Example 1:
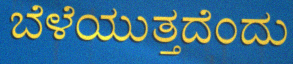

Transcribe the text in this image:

ಬೆಳೆಯುತ್ತದೆಂದು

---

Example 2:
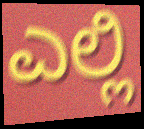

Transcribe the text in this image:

ಎಲ್ಲಿ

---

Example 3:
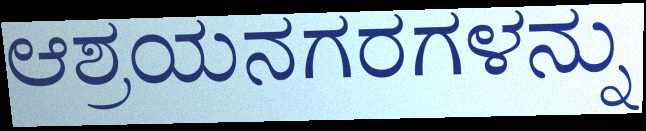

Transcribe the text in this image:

ಆಶ್ರಯನಗರಗಳನ್ನು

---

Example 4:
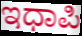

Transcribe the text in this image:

ಇಧಾಪಿ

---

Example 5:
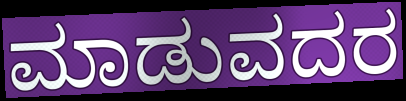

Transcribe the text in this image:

ಮಾಡುವದರ